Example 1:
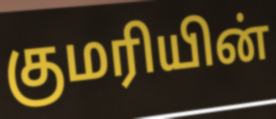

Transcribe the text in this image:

குமரியின்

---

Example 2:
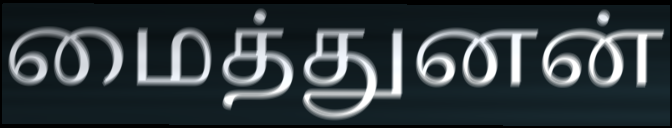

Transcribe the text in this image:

மைத்துனன்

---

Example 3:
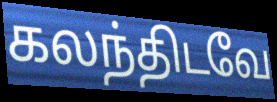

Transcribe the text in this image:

கலந்திடவே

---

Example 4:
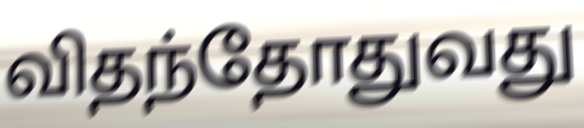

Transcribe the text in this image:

விதந்தோதுவது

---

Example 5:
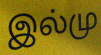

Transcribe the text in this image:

இல்மு